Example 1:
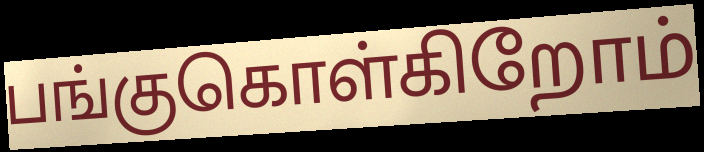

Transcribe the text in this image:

பங்குகொள்கிறோம்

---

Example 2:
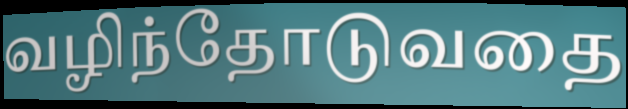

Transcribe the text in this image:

வழிந்தோடுவதை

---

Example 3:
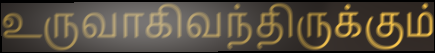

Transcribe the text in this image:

உருவாகிவந்திருக்கும்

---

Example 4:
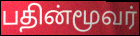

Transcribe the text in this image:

பதின்மூவர்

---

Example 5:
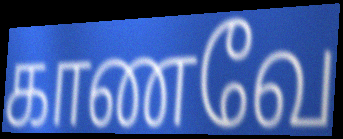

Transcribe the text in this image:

காணவே